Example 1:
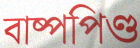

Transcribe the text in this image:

বাষ্পপিণ্ড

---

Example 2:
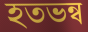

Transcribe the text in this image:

হতভন্ব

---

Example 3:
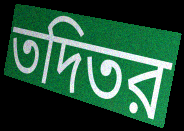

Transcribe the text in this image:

তদিতর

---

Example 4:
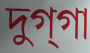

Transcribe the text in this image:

দুগ্‌গা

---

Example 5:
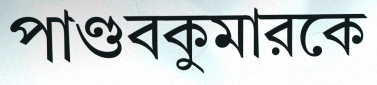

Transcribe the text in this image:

পাণ্ডবকুমারকে